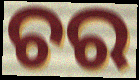
ଚର